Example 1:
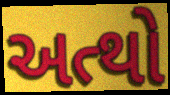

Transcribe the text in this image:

અત્થો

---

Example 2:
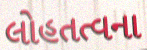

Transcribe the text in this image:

લોહતત્વના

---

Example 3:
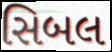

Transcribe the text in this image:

સિબલ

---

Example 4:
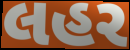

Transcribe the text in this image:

લહર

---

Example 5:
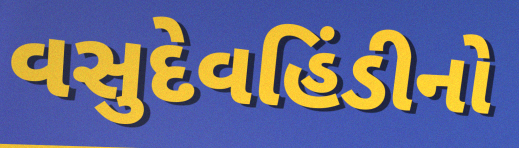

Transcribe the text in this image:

વસુદેવહિંડીનો